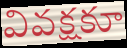
వివక్షకూ